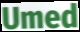
Umed